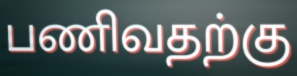
பணிவதற்கு